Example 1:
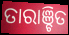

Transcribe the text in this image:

ତାରାଞ୍ଚିତ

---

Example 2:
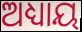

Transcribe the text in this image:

ଅଧ୍ୟାୟ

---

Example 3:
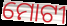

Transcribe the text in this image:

ମୋଟୀ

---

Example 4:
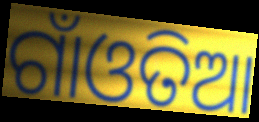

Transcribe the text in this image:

ଗାଁଓତିଆ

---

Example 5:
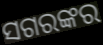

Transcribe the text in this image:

ସଗରଙ୍କର